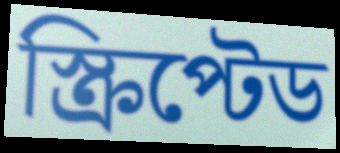
স্ক্রিপ্টেড